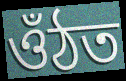
ওঁঠত